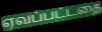
ஏவப்பட்டதை